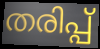
തരിപ്പ്